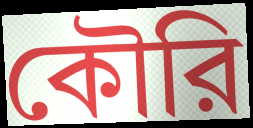
কৌরি